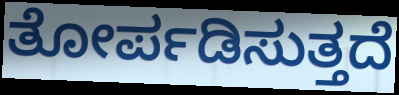
ತೋರ್ಪಡಿಸುತ್ತದೆ